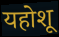
यहोशू